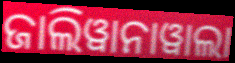
ଜାଲିୱାନାୱାଲା